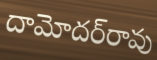
దామోదర్‌రావు